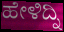
ಹೇಳಿದ್ನಿ